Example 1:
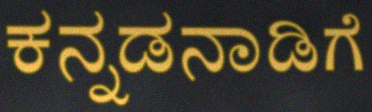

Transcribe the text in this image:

ಕನ್ನಡನಾಡಿಗೆ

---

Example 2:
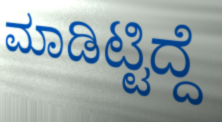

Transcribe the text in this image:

ಮಾಡಿಟ್ಟಿದ್ದೆ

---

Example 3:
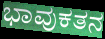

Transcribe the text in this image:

ಭಾವುಕತನ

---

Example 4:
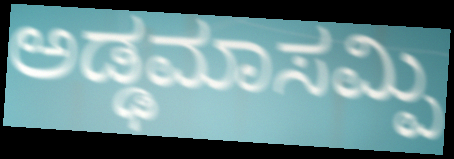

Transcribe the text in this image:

ಅಡ್ಢಮಾಸಮ್ಪಿ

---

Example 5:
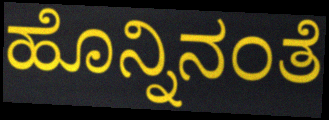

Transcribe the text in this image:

ಹೊನ್ನಿನಂತೆ